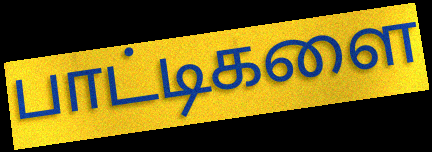
பாட்டிகளை